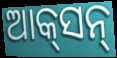
ଆକ୍‍ସନ୍